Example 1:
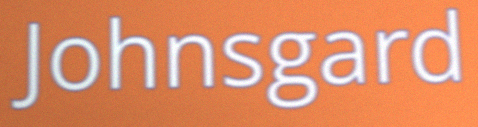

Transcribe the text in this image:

Johnsgard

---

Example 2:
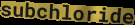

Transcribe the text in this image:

subchloride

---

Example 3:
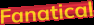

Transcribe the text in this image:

Fanatical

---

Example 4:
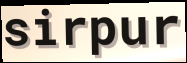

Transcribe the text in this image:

sirpur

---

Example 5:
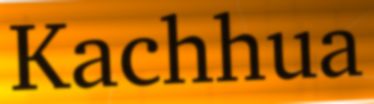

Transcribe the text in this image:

Kachhua